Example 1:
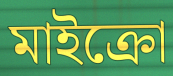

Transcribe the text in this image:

মাইক্রো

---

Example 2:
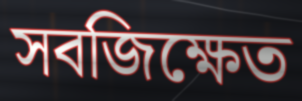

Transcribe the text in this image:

সবজিক্ষেত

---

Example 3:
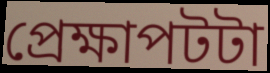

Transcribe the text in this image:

প্রেক্ষাপটটা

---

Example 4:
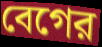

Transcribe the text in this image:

বেগের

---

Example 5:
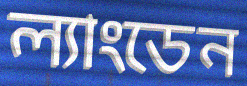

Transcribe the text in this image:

ল্যাংডেন